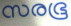
സരഭൂ